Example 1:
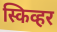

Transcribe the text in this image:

स्किव्हर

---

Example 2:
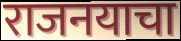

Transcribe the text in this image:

राजनयाचा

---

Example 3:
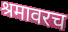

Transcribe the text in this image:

श्रमावरच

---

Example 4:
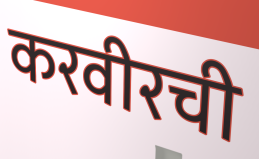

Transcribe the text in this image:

करवीरची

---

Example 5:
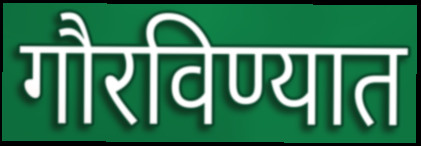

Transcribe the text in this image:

गौरविण्यात